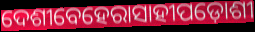
ଦେଶୀବେହେରାସାହୀପଡ଼ୋଶୀ